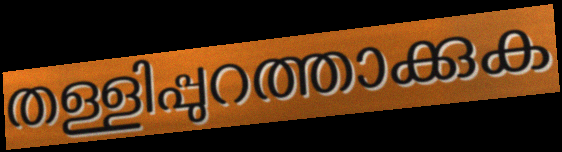
തള്ളിപ്പുറത്താക്കുക